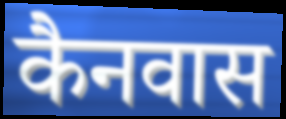
कैनवास